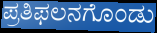
ಪ್ರತಿಫಲನಗೊಂಡು